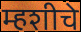
म्हशीचे